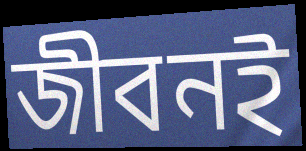
জীবনই